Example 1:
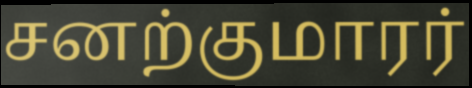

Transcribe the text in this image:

சனற்குமாரர்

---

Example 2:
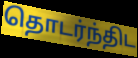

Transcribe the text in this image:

தொடர்ந்திட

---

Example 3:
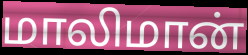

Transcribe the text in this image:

மாலிமான்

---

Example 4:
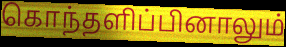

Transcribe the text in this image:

கொந்தளிப்பினாலும்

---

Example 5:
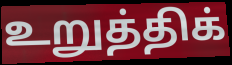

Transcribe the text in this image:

உறுத்திக்